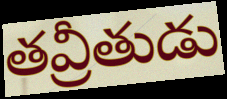
తవ్రీతుడు